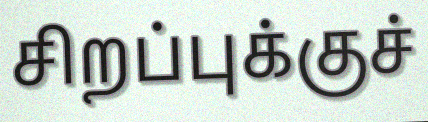
சிறப்புக்குச்